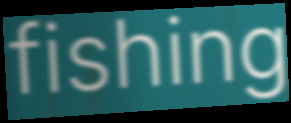
fishing